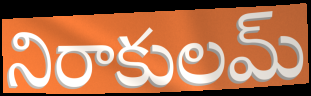
నిరాకులమ్